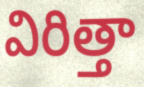
విరిత్తా